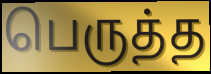
பெருத்த